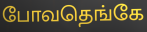
போவதெங்கே